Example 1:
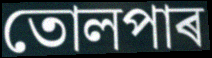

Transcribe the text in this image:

তোলপাৰ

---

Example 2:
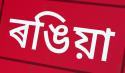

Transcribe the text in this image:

ৰঙিয়া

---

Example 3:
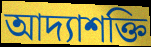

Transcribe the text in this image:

আদ্যাশক্তি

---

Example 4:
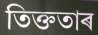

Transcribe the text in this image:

তিক্ততাৰ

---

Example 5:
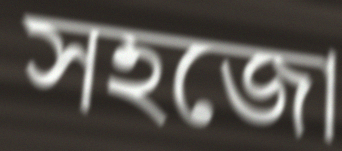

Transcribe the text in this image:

সহজো